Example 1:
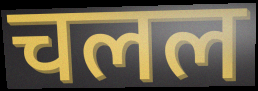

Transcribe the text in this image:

चलल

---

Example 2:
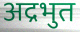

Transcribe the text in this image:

अद्रभुत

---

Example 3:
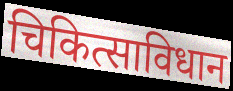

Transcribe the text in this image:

चिकित्साविधान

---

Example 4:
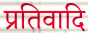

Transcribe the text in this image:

प्रतिवादि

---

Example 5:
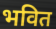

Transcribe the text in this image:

भवित